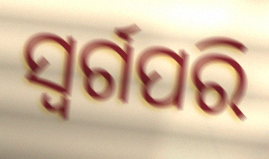
ସ୍ୱର୍ଗପରି